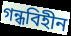
গন্ধবিহীন